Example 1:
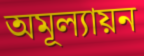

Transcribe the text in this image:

অমূল্যায়ন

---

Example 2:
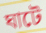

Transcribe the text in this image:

ঘাটে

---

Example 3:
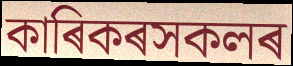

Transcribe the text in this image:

কাৰিকৰসকলৰ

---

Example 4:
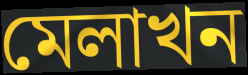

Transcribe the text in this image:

মেলাখন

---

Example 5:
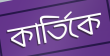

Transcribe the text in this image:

কাৰ্তিকে